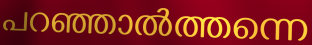
പറഞ്ഞാൽത്തന്നെ